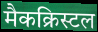
मैकक्रिस्टल